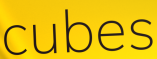
cubes